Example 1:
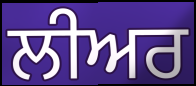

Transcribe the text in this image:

ਲੀਅਰ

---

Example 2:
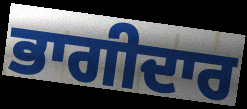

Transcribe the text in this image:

ਭਾਗੀਦਾਰ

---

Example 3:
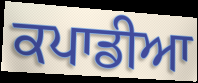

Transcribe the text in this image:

ਕਪਾਡੀਆ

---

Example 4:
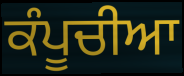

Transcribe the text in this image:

ਕੰਪੂਚੀਆ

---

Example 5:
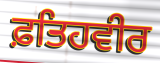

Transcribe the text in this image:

ਫ਼ਤਿਹਵੀਰ